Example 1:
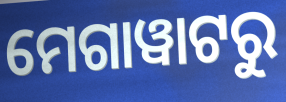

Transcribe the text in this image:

ମେଗାୱାଟରୁ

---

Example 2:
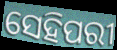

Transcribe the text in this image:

ସେହିପରୀ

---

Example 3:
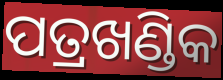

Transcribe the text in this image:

ପତ୍ରଖଣ୍ଡିକ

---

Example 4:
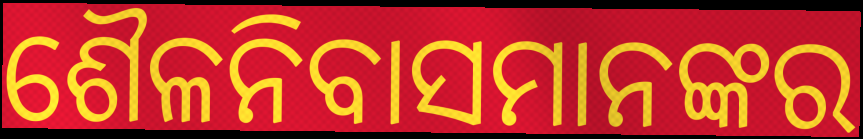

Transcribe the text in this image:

ଶୈଳନିବାସମାନଙ୍କର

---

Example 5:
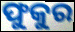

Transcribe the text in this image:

ଫୁକୁର